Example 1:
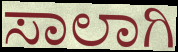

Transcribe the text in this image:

ಸಾಲಾಗಿ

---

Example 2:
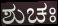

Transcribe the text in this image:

ಶುಚಃ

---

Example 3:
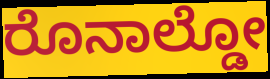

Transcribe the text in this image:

ರೊನಾಲ್ಡೋ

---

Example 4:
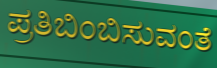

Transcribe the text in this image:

ಪ್ರತಿಬಿಂಬಿಸುವಂತೆ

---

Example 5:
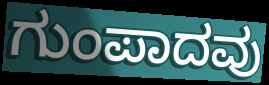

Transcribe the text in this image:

ಗುಂಪಾದವು